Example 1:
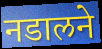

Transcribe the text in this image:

नडालने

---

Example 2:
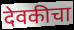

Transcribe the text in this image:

देवकीचा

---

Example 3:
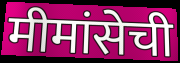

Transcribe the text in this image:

मीमांसेची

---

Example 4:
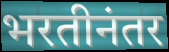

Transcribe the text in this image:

भरतीनंतर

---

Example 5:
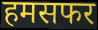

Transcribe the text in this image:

हमसफर